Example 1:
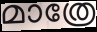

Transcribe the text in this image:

മാത്രേ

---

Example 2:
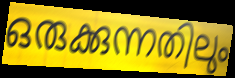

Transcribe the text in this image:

ഒരുക്കുന്നതിലും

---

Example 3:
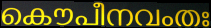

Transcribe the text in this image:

കൌപീനവംതഃ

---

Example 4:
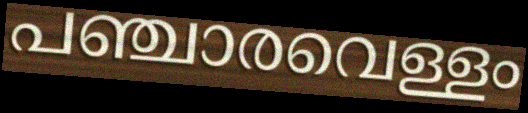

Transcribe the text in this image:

പഞ്ചാരവെള്ളം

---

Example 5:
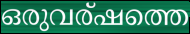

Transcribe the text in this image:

ഒരുവര്ഷത്തെ